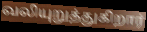
வலியுறுத்துகிறார்